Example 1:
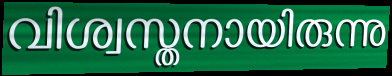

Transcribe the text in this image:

വിശ്വസ്തനായിരുന്നു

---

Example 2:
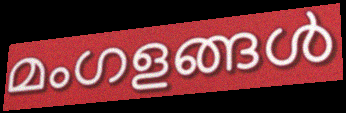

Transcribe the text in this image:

മംഗളങ്ങൾ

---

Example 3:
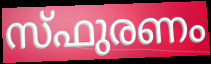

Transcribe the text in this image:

സ്ഫുരണം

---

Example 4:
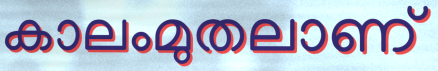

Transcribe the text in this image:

കാലംമുതലാണ്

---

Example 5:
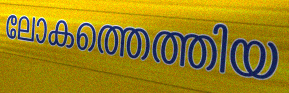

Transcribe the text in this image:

ലോകത്തെത്തിയ